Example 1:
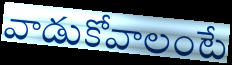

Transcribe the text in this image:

వాడుకోవాలంటే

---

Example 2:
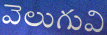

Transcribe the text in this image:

వెలుగువి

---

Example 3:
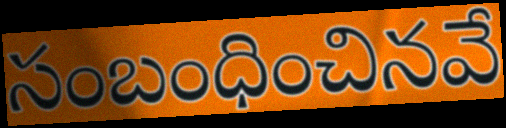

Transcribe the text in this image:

సంబంధించినవే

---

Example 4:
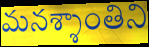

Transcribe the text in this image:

మనశ్శాంతిని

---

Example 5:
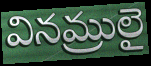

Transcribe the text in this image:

వినమ్రులై